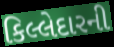
કિલ્લેદારની